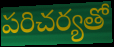
పరిచర్యతో